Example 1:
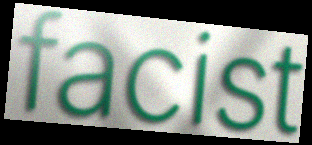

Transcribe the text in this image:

facist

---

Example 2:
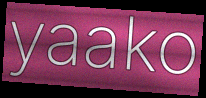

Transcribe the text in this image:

yaako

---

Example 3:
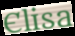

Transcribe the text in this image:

Elisa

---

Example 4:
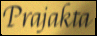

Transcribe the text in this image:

Prajakta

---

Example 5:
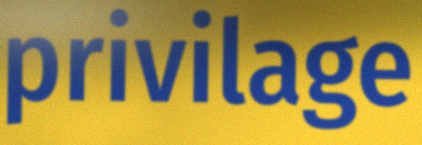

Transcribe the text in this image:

privilage